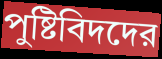
পুষ্টিবিদদের